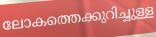
ലോകത്തെക്കുറിച്ചുള്ള